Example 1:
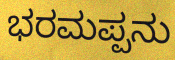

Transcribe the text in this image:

ಭರಮಪ್ಪನು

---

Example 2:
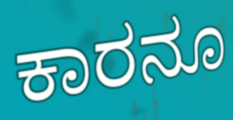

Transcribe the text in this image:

ಕಾರನೂ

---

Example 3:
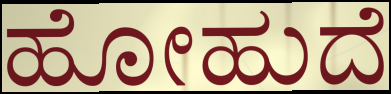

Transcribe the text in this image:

ಹೋಹುದೆ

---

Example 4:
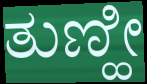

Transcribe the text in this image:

ತುಣ್ಹೀ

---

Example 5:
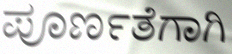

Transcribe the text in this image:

ಪೂರ್ಣತೆಗಾಗಿ